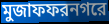
মুজাফফরনগরে